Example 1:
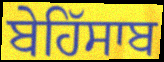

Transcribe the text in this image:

ਬੇਹਿੱਸਾਬ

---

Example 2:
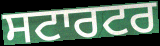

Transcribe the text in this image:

ਸਟਾਰਟਰ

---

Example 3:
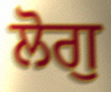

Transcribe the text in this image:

ਲੋਗੁ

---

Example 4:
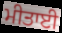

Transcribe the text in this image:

ਮੀਤਾਈ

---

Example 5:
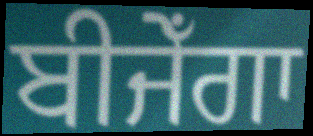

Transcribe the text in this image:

ਬੀਜੇਁਗਾ